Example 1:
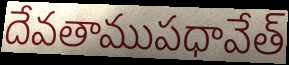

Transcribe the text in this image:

దేవతాముపధావేత్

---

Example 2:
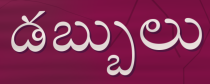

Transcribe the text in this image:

డబ్బులు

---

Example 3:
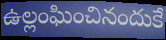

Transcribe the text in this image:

ఉల్లంఘించినందుకే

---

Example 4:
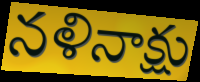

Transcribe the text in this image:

నళినాక్షు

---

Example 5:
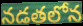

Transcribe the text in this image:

నడతలోన